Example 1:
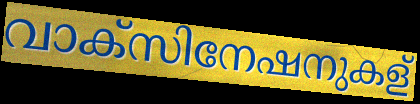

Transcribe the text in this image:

വാക്സിനേഷനുകള്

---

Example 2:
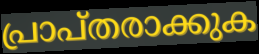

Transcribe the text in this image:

പ്രാപ്തരാക്കുക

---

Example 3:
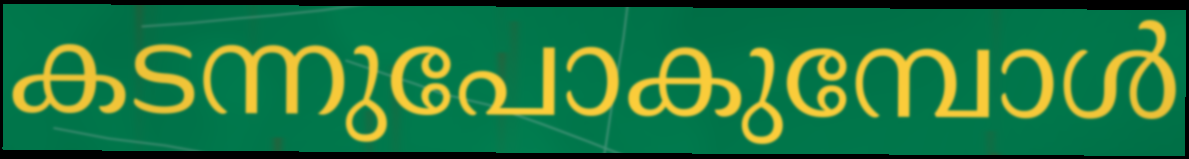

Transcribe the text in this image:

കടന്നുപോകുമ്പോൾ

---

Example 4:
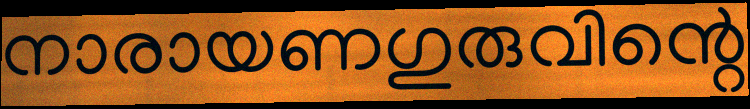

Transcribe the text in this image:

നാരായണഗുരുവിന്റെ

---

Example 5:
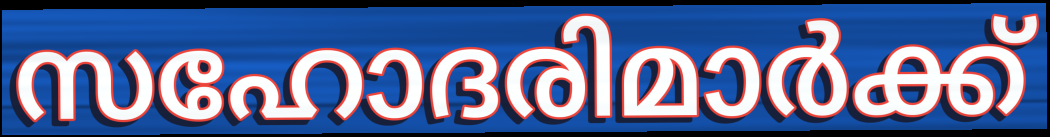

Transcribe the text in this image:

സഹോദരിമാർക്ക്